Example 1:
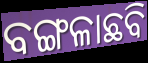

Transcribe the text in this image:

ବଙ୍ଗଳାଛବି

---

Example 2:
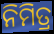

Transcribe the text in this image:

ନିମିତ୍ର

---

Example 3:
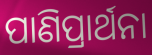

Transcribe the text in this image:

ପାଣିପ୍ରାର୍ଥନା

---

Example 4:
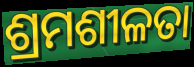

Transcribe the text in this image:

ଶ୍ରମଶୀଳତା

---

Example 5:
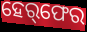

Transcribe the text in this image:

ହେର୍‌ଫେର